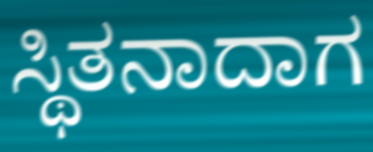
ಸ್ಥಿತನಾದಾಗ